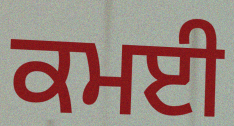
ਕਮਈ